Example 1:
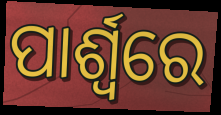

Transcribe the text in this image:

ପାର୍ଶ୍ଵରେ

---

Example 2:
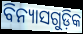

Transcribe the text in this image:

ବିନ୍ୟାସଗୁଡ଼ିକ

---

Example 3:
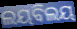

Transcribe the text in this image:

ଲୟବିଲୟ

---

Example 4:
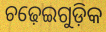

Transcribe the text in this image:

ଚଢ଼େଇଗୁଡ଼ିକ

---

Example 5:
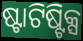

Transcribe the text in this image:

ଷ୍ଟାଟିଷ୍ଟିକ୍ସ